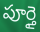
పూర్తై